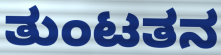
ತುಂಟತನ